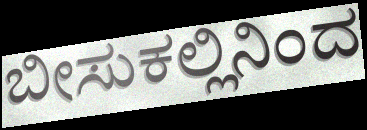
ಬೀಸುಕಲ್ಲಿನಿಂದ